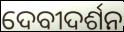
ଦେବୀଦର୍ଶନ